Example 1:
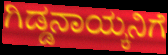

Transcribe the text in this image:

ಗಿಡ್ಡನಾಯ್ಕನಿಗೆ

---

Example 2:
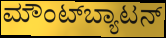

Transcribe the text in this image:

ಮೌಂಟ್‌ಬ್ಯಾಟನ್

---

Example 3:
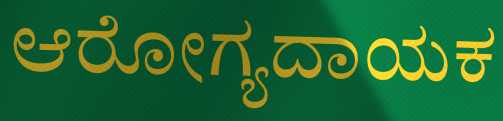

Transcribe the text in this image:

ಆರೋಗ್ಯದಾಯಕ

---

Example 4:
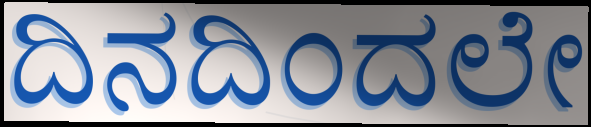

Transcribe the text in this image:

ದಿನದಿಂದಲೇ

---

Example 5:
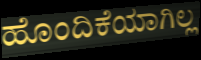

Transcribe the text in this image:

ಹೊಂದಿಕೆಯಾಗಿಲ್ಲ